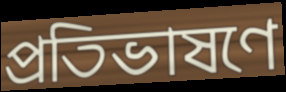
প্রতিভাষণে